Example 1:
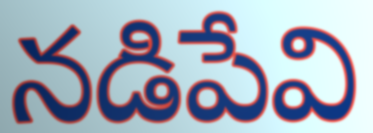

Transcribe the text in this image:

నడిపేవి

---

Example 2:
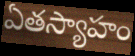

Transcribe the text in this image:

ఏతస్యాహం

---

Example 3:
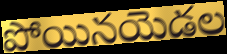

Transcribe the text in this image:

పోయినయెడల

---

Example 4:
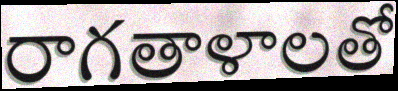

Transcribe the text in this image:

రాగతాళాలతో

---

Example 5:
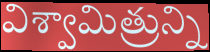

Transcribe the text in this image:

విశ్వామిత్రున్ని